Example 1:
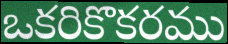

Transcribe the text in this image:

ఒకరికొకరము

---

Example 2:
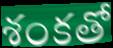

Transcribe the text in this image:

శంకతో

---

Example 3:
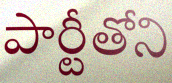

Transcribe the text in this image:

పార్టీతోని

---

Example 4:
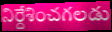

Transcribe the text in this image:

నిర్దేశించగలడు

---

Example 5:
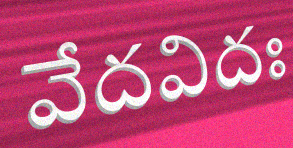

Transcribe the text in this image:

వేదవిదః